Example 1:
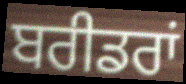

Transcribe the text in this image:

ਬਰੀਡਰਾਂ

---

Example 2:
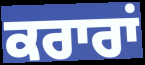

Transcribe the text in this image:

ਕਰਾਰਾਂ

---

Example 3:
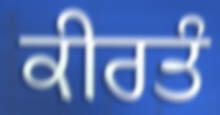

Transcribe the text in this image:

ਕੀਰਤੰ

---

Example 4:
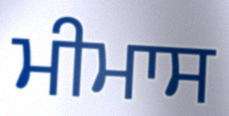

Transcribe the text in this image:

ਮੀਮਾਸ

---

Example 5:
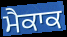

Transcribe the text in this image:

ਮੈਕਾਕ